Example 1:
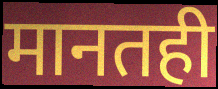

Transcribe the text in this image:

मानतही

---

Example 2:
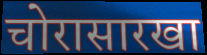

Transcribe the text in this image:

चोरासारखा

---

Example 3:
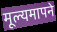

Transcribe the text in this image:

मूल्यमापने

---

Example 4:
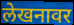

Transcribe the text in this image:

लेखनावर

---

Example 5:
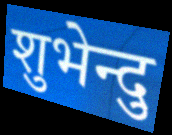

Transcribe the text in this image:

शुभेन्दु